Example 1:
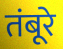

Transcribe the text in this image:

तंबूरे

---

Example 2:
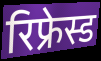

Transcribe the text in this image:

रिफ्रेस्ड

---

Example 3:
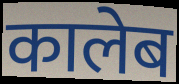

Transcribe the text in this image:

कालेब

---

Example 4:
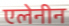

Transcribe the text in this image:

एलेनीन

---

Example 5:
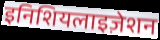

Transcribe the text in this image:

इनिशियलाइज़ेशन